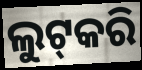
ଲୁଟ୍‍କରି